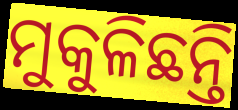
ମୁକୁଳିଛନ୍ତି